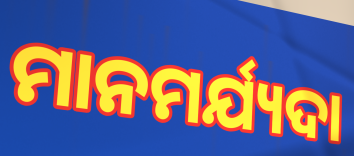
ମାନମର୍ଯ୍ୟଦା